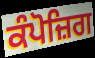
ਕੰਪੋਜ਼ਿਗ